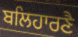
ਬਲਿਹਾਰਣੈ